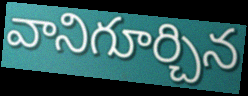
వానిగూర్చిన